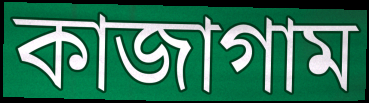
কাজাগাম